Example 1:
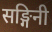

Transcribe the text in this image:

सङ्गिनी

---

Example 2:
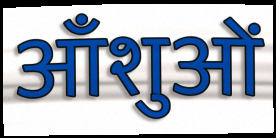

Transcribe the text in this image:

आँशुओं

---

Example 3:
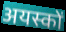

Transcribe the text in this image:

अयस्कों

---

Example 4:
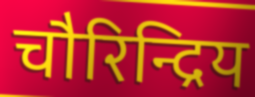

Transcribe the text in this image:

चौरिन्द्रिय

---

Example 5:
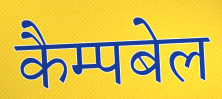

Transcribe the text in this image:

कैम्पबेल